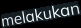
melakukan